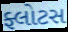
ફ્લોટસ